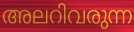
അലറിവരുന്ന